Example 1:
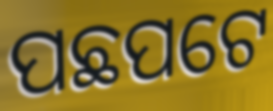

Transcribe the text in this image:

ପଛପଟେ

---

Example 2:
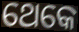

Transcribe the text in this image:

ଥେକେ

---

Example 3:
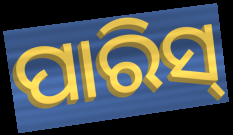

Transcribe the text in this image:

ପାରିସ୍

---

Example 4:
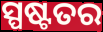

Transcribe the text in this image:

ସ୍ପଷ୍ଟତର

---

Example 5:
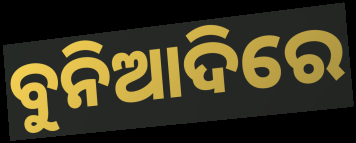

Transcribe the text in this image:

ବୁନିଆଦିରେ